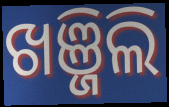
ଖଞ୍ଜିଲି